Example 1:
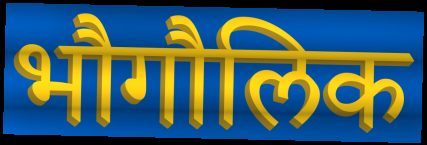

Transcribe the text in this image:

भौगौलिक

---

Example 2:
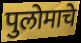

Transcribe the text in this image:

पुलोमाचे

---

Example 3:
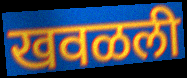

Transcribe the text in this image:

खवळली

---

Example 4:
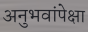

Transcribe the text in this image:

अनुभवांपेक्षा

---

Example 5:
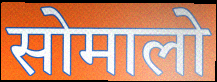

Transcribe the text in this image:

सोमालो